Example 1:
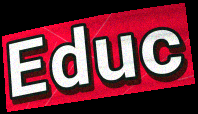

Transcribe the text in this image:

Educ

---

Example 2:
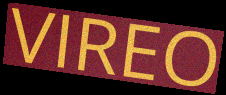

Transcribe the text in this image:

VIREO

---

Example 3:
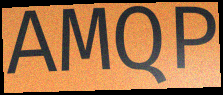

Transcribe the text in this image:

AMQP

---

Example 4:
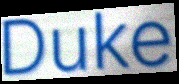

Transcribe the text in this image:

Duke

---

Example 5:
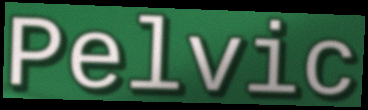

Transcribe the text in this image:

Pelvic